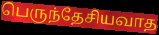
பெருந்தேசியவாத